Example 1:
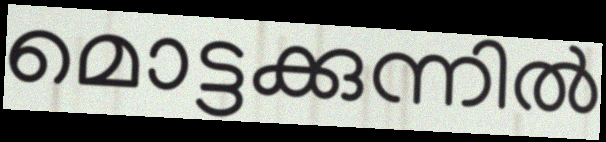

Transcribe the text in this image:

മൊട്ടക്കുന്നിൽ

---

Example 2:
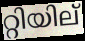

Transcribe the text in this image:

റ്റിയില്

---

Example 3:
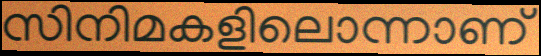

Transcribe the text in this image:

സിനിമകളിലൊന്നാണ്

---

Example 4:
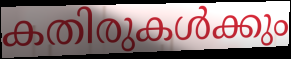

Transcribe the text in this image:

കതിരുകൾക്കും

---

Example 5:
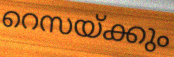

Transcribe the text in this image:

റെസയ്ക്കും